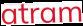
atram